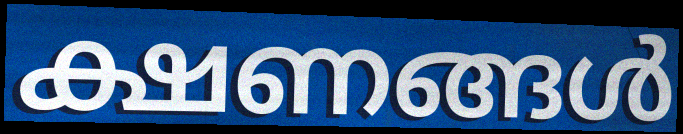
ക്ഷണങ്ങൾ